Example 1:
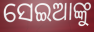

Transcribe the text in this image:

ସେଇଆଙ୍କୁ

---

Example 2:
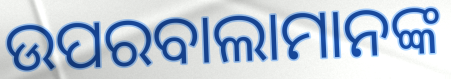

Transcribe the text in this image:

ଉପରବାଲାମାନଙ୍କ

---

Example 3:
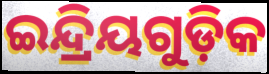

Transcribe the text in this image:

ଇନ୍ଦ୍ରିୟଗୁଡ଼ିକ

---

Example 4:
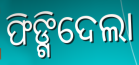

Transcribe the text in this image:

ଫିଙ୍ଗିଦେଲା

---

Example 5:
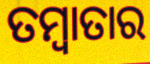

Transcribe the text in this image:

ତମ୍ବାତାର